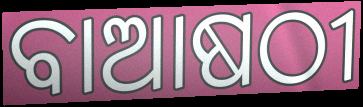
ବାଆଷଠୀ